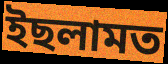
ইছলামত